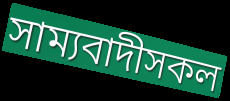
সাম্যবাদীসকল